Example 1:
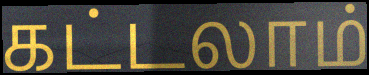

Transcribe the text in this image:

கட்டலாம்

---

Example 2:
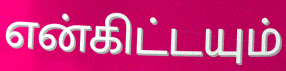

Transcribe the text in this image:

என்கிட்டயும்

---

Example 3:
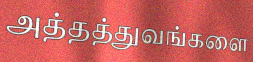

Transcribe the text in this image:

அத்தத்துவங்களை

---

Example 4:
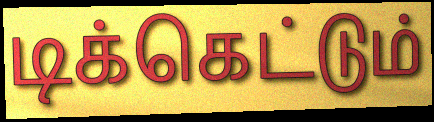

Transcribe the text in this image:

டிக்கெட்டும்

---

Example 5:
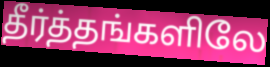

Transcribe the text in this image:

தீர்த்தங்களிலே